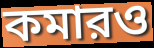
কমারও